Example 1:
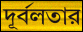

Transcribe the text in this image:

দূর্বলতার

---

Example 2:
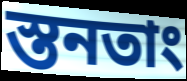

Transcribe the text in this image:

স্তনতাং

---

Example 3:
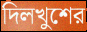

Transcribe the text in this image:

দিলখুশের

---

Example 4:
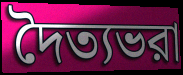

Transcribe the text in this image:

দৈত্যভরা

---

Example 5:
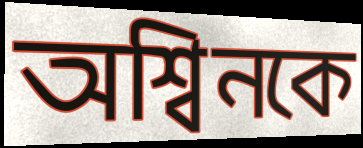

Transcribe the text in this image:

অশ্বিনকে